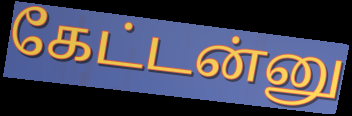
கேட்டன்னு